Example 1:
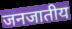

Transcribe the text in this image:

जनजातीय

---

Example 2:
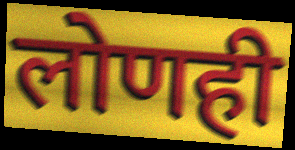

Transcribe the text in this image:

लोणही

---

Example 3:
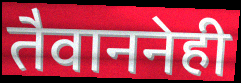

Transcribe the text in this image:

तैवाननेही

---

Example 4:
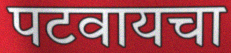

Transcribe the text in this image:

पटवायचा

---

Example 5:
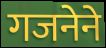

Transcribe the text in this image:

गजनेने